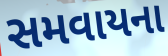
સમવાયના